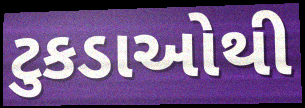
ટુકડાઓથી